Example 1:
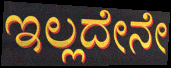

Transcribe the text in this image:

ಇಲ್ಲದೇನೇ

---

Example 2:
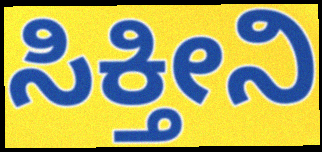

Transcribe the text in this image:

ಸಿಕ್ತೀನಿ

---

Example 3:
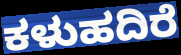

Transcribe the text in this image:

ಕಳುಹದಿರೆ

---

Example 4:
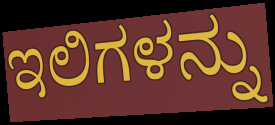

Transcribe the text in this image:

ಇಲಿಗಳನ್ನು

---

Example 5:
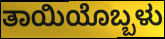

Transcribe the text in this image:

ತಾಯಿಯೊಬ್ಬಳು